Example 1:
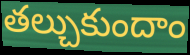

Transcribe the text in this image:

తల్చుకుందాం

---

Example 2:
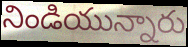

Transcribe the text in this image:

నిండియున్నారు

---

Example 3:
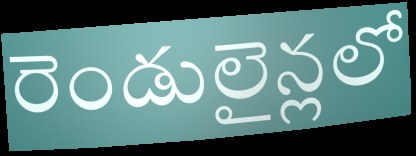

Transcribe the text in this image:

రెండులైన్లలో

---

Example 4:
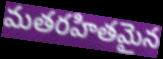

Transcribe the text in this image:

మతరహితమైన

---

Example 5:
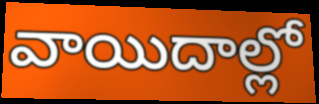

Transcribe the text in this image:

వాయిదాల్లో